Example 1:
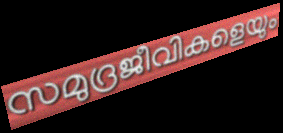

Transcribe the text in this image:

സമുദ്രജീവികളെയും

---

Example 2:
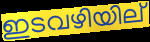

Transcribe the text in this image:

ഇടവഴിയില്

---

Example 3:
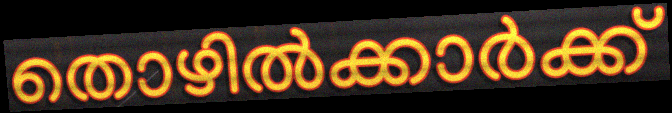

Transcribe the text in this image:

തൊഴിൽക്കാർക്ക്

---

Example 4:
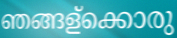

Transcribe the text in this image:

ഞങ്ങള്ക്കൊരു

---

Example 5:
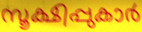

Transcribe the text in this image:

സൂക്ഷിപ്പുകാർ